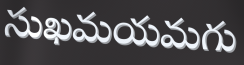
సుఖమయమగు